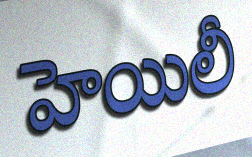
హెయిలీ